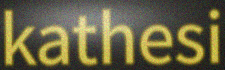
kathesi